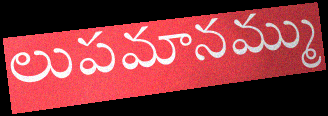
లుపమానమ్ము